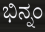
ಭಿನ್ನಂ